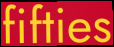
fifties